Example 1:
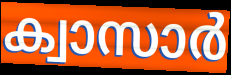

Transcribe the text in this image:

ക്വാസാർ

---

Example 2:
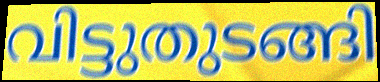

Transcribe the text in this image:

വിട്ടുതുടങ്ങി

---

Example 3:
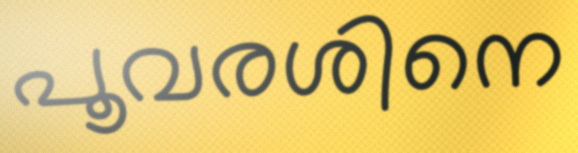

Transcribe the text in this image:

പൂവരശിനെ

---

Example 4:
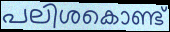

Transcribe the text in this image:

പലിശകൊണ്ട്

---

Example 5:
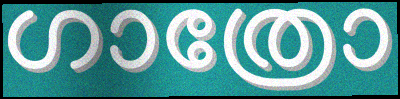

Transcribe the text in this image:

ഗാത്രോ